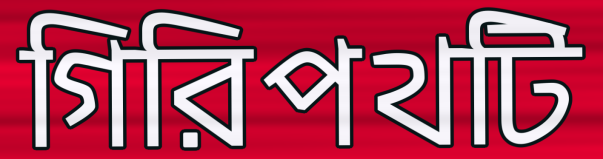
গিরিপথটি